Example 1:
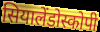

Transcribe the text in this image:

सियालेंडोस्कोपी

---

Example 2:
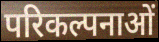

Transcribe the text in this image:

परिकल्पनाओं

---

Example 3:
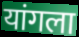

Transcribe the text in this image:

यांगला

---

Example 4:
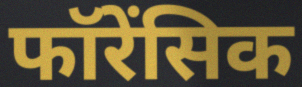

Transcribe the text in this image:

फॉरेंसिक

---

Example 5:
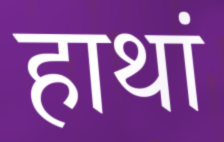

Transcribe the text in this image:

हाथां